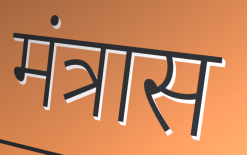
मंत्रास